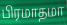
பிரமாதமா